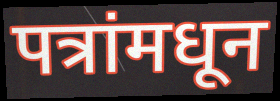
पत्रांमधून